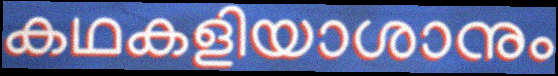
കഥകളിയാശാനും